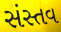
સંસ્તવ